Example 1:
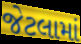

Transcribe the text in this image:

જેટલામાં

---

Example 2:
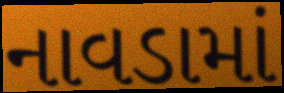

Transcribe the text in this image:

નાવડામાં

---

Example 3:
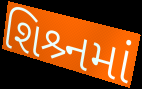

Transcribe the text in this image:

શિશ્ર્નમાં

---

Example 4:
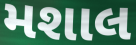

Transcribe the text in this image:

મશાલ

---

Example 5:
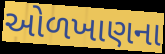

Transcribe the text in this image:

ઓળખાણના